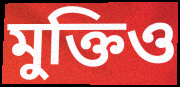
মুক্তিও